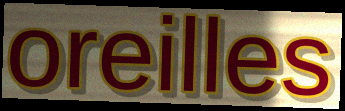
oreilles